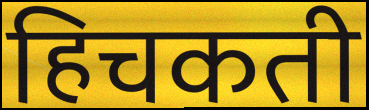
हिचकती